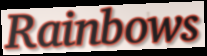
Rainbows